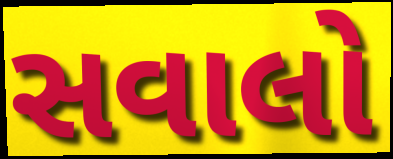
સવાલો